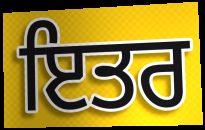
ਇਤਰ